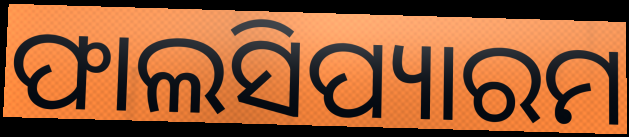
ଫାଲସିପ୍ୟାରମ